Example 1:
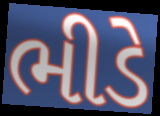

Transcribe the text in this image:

ભીડે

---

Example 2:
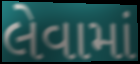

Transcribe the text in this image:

લેવામાં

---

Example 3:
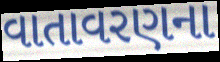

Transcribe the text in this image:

વાતાવરણના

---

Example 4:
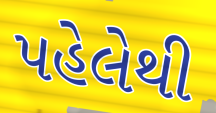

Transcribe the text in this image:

પહેલેથી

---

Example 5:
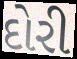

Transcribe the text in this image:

દોરી